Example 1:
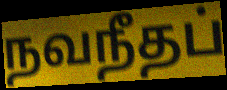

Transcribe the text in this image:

நவநீதப்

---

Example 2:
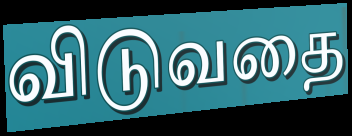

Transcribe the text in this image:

விடுவதை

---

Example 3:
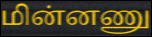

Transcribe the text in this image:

மின்னணு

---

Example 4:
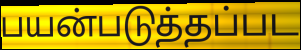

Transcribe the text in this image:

பயன்படுத்தப்பட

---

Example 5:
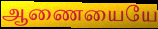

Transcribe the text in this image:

ஆணையையே